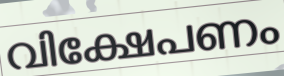
വിക്ഷേപണം